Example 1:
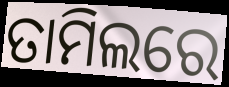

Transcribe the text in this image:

ତାମିଲରେ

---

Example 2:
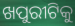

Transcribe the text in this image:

ଖପୁରୀଟିକୁ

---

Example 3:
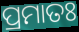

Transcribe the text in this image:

ପ୍ରମାତଃ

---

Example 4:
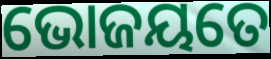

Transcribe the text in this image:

ଭୋଜୟତେ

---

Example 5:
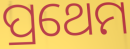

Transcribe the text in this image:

ପ୍ରଥେମ